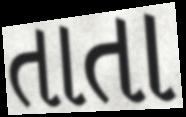
તાતા